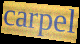
carpel